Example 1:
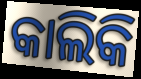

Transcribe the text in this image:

କାଲିକି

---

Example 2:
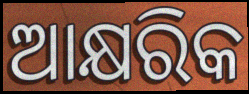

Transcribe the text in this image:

ଆକ୍ଷରିକ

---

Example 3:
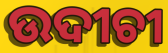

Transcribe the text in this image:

ଉଦୀଚୀ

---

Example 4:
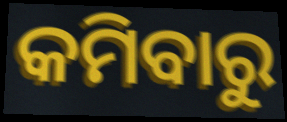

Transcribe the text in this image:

କମିବାରୁ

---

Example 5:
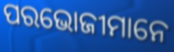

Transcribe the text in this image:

ପରଭୋଜୀମାନେ